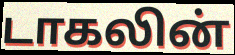
டாகலின்